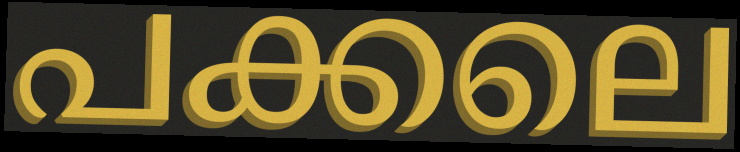
പക്കലെ